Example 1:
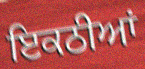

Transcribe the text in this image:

ਇਕਠੀਆਂ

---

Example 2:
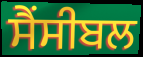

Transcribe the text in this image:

ਸੈਂਸੀਬਲ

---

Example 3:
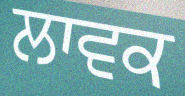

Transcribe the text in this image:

ਲਾਵਕ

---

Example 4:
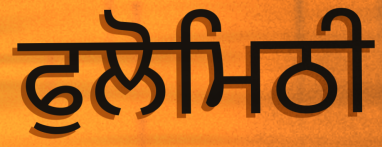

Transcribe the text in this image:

ਫੁਲੋਮਿਠੀ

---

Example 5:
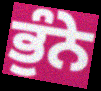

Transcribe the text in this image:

ਭੁੰਨੇ